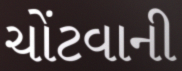
ચોંટવાની